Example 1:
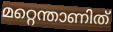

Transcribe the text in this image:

മറ്റെന്താണിത്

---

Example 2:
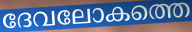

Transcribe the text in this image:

ദേവലോകത്തെ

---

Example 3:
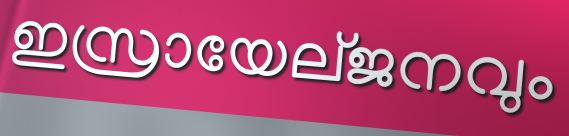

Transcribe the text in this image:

ഇസ്രായേല്ജനവും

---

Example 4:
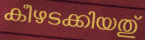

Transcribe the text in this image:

കീഴടക്കിയതു്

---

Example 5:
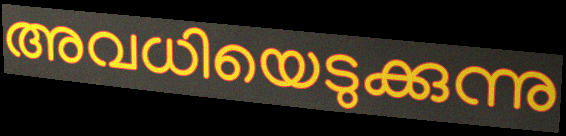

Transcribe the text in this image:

അവധിയെടുക്കുന്നു